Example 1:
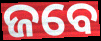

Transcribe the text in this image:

ଜବେ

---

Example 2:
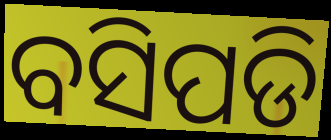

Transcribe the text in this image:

ବସିପଡି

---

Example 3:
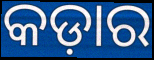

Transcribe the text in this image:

କଡ଼ାର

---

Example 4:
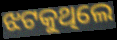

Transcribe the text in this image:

ଝଟକୁଥିଲେ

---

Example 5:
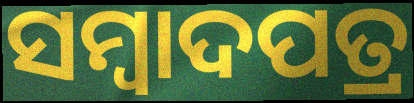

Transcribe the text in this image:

ସମ୍ୱାଦପତ୍ର